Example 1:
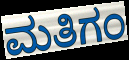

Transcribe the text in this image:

ಮತಿಗಂ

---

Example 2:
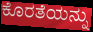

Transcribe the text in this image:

ಕೊರತೆಯನ್ನು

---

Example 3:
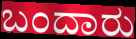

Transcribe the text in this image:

ಬಂದಾರು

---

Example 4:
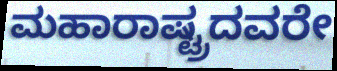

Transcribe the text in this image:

ಮಹಾರಾಷ್ಟ್ರದವರೇ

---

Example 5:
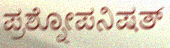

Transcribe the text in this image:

ಪ್ರಶ್ನೋಪನಿಷತ್